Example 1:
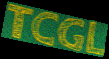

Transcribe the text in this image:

TCGL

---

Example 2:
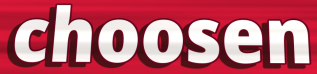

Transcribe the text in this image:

choosen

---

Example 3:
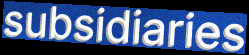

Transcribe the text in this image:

subsidiaries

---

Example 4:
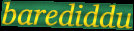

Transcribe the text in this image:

barediddu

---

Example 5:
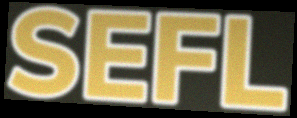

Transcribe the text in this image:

SEFL